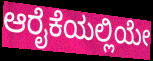
ಆರೈಕೆಯಲ್ಲಿಯೇ